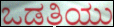
ಒಡತಿಯು